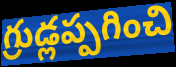
గ్రుడ్లప్పగించి